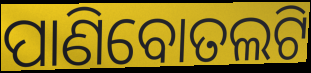
ପାଣିବୋତଲଟି